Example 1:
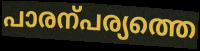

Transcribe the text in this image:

പാരന്പര്യത്തെ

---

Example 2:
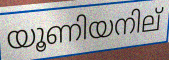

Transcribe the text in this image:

യൂണിയനില്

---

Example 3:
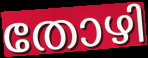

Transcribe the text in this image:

തോഴി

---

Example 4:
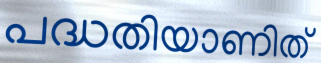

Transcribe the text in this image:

പദ്ധതിയാണിത്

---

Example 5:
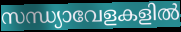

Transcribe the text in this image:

സന്ധ്യാവേളകളിൽ